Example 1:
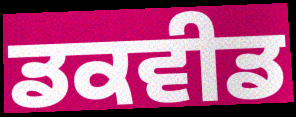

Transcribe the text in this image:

ਡਕਵੀਡ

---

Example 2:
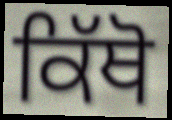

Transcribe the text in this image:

ਕਿੱਥੋ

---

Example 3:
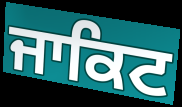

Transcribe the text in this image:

ਜਾਕਿਟ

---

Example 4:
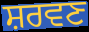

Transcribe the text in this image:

ਸ਼ਰਵਣ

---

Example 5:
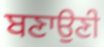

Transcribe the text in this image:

ਬਣਾਉਣੀ